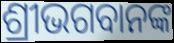
ଶ୍ରୀଭଗବାନଙ୍କ